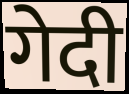
गेदी